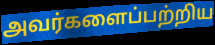
அவர்களைப்பற்றிய